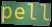
pell